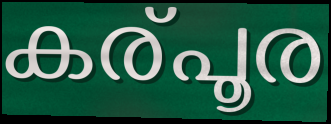
കര്പൂര